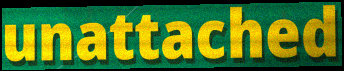
unattached